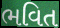
ભવિત